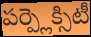
పర్ప్లెక్సిటీ